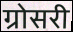
ग्रोसरी